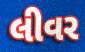
લીવર